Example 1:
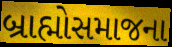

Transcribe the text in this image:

બ્રાહ્મોસમાજના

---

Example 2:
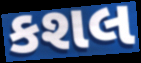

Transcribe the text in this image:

કશલ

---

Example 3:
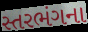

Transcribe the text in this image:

સ્તરભંગના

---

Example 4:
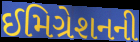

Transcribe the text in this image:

ઈમિગ્રેશનની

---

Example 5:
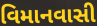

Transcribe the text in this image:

વિમાનવાસી